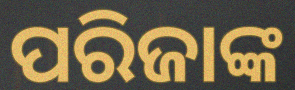
ପରିଜାଙ୍କ